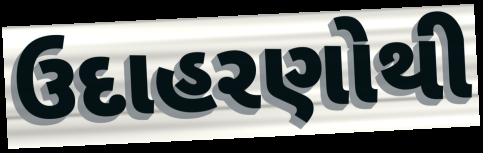
ઉદાહરણોથી